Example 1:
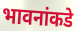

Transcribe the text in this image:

भावनांकडे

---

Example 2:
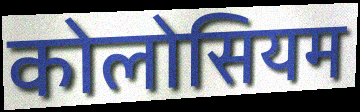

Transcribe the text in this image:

कोलोसियम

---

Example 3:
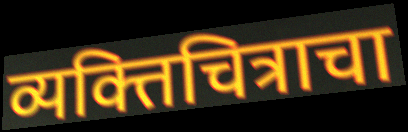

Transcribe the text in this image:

व्यक्तिचित्राचा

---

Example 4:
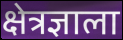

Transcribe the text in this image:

क्षेत्रज्ञाला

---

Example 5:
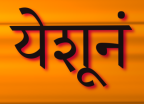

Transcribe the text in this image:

येशूनं